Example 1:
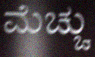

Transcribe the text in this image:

ಮೆಚ್ಚು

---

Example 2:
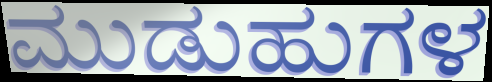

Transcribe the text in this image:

ಮುಡುಹುಗಳ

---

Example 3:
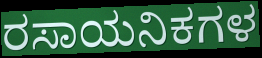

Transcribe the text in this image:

ರಸಾಯನಿಕಗಳ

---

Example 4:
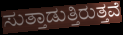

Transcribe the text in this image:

ಸುತ್ತಾಡುತ್ತಿರುತ್ತವೆ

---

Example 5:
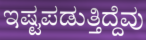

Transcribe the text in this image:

ಇಷ್ಟಪಡುತ್ತಿದ್ದೆವು